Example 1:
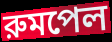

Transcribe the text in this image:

রুমপেল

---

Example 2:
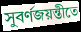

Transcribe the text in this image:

সুবর্ণজয়ন্তীতে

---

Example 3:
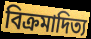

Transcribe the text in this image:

বিক্রমাদিত্য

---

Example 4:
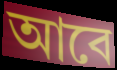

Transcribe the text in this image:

আবে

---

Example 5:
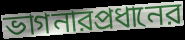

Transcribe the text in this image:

ভাগনারপ্রধানের